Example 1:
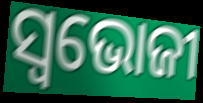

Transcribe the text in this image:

ସ୍ବଭୋଜୀ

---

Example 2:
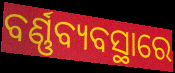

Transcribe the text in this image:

ବର୍ଣ୍ଣବ୍ୟବସ୍ଥାରେ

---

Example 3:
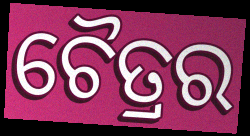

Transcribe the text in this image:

ଚୈତ୍ରର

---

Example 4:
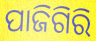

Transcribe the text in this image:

ପାଜିଗିରି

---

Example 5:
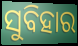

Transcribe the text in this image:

ସୁବିହାର